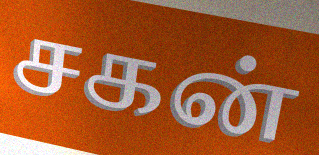
சகன்